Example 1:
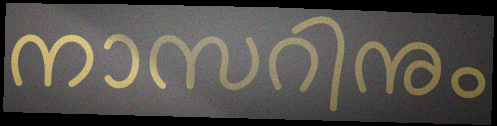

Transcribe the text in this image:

നാസറിനും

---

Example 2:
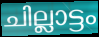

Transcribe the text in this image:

ചില്ലാട്ടം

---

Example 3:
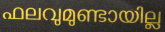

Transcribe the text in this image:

ഫലവുമുണ്ടായില്ല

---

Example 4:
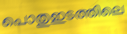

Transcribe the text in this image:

പൊതുഇടത്തിലെ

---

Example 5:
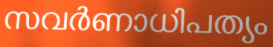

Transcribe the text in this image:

സവർണാധിപത്യം